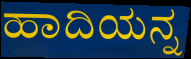
ಹಾದಿಯನ್ನ